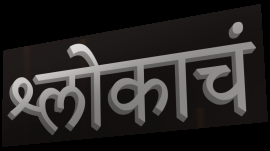
श्लोकाचं